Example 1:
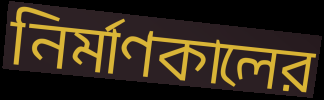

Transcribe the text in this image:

নির্মাণকালের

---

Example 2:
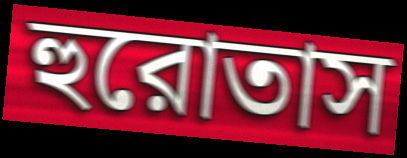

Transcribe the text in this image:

হুরোতাস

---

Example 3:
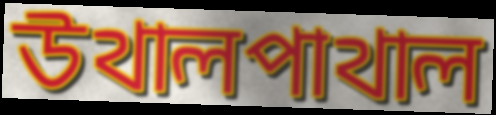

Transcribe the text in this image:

উথালপাথাল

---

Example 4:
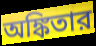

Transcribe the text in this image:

অঙ্কিতার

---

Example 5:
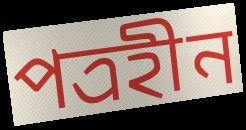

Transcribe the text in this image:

পত্রহীন